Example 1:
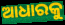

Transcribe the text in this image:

ଆଧାରକୁ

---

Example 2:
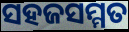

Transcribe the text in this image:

ସହଜସମ୍ମତ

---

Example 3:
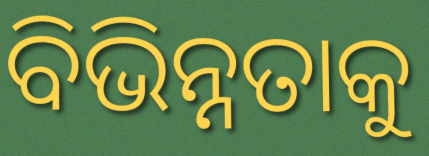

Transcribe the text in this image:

ବିଭିନ୍ନତାକୁ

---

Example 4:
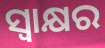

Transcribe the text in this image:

ସ୍ଵାକ୍ଷର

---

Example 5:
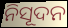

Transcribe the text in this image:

ନିସୂଦନ